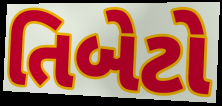
તિબેટો